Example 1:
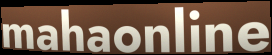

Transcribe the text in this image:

mahaonline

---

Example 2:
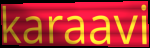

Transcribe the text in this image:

karaavi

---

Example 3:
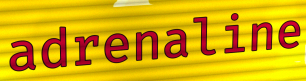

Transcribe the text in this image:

adrenaline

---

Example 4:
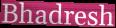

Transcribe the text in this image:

Bhadresh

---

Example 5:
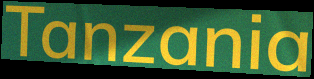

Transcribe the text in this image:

Tanzania